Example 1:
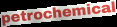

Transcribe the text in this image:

petrochemical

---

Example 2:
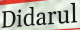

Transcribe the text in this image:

Didarul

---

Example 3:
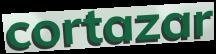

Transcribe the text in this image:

cortazar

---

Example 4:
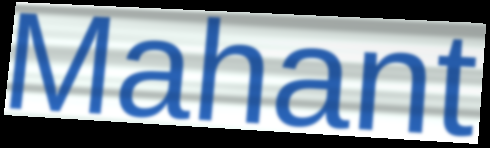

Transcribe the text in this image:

Mahant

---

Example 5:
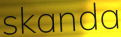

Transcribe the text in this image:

skanda